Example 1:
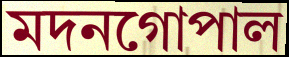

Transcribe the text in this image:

মদনগোপাল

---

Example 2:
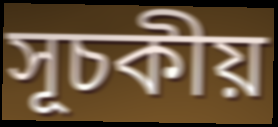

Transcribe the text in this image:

সূচকীয়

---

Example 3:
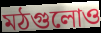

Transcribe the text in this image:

মঠগুলোও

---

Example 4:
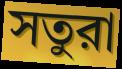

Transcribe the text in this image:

সতুরা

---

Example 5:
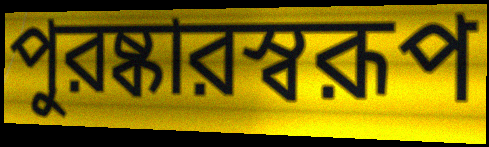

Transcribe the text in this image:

পুরষ্কারস্বরূপ